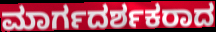
ಮಾರ್ಗದರ್ಶಕರಾದ